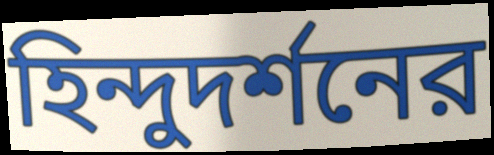
হিন্দুদর্শনের